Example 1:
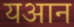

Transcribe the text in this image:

यआन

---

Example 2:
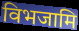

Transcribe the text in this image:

विभजामि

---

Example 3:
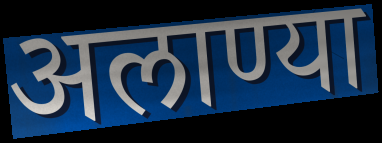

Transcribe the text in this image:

अलाण्या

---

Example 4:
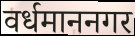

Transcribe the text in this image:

वर्धमाननगर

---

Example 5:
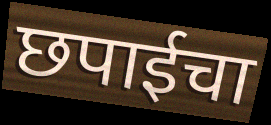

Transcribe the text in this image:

छपाईचा